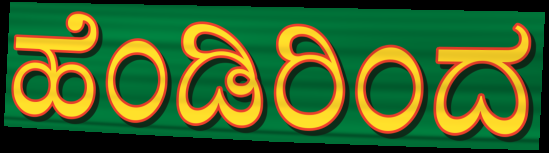
ಹೆಂಡಿರಿಂದ